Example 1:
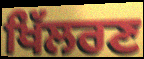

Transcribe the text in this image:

ਖਿੱਲਰਣ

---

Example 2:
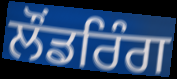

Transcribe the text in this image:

ਲੌਂਡਰਿੰਗ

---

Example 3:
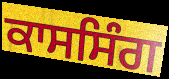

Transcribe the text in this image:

ਕਾਸਸਿੰਗ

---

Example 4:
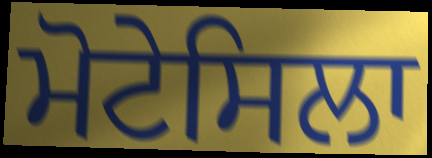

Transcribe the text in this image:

ਮੋਟੇਸਿਲਾ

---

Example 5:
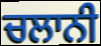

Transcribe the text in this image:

ਚਲਾਨੀ